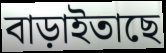
বাড়াইতাছে